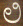
ಲಿ